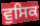
ਵੁਸਿਕ